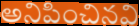
అనిపించినవి